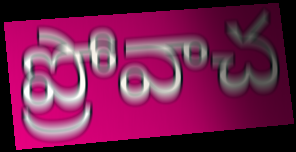
ప్రోవాచ